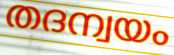
തദന്വയം